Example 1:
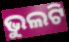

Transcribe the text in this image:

ଭୁଲଟି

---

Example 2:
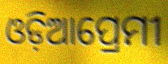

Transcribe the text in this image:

ଓଡ଼ିଆପ୍ରେମୀ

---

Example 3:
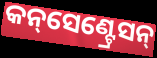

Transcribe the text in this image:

କନ୍‌ସେଣ୍ଟ୍ରେସନ୍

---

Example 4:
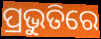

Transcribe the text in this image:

ପ୍ରଭୁତିରେ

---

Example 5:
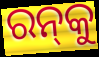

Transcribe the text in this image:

ରନ୍‌କୁ